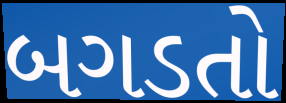
બગડતો